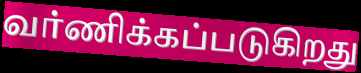
வர்ணிக்கப்படுகிறது